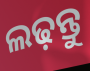
ଲଢ଼ନ୍ତୁ